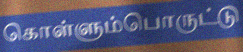
கொள்ளும்பொருட்டு